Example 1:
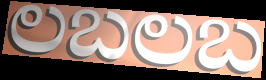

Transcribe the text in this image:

లబలబ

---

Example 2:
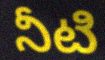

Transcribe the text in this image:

నీటి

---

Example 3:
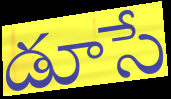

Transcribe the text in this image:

డూసే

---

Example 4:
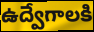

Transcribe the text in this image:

ఉద్వేగాలకి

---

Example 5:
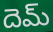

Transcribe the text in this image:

దెమ్